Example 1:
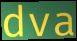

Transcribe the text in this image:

dva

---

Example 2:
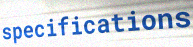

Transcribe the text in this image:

specifications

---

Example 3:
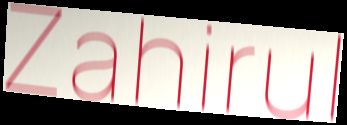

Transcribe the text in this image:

Zahirul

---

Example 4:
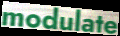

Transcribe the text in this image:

modulate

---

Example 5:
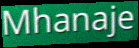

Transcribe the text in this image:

Mhanaje